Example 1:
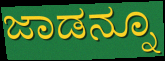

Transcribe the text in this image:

ಜಾಡನ್ನೂ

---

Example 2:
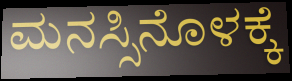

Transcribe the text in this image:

ಮನಸ್ಸಿನೊಳಕ್ಕೆ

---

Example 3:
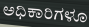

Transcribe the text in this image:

ಅಧಿಕಾರಿಗಳೂ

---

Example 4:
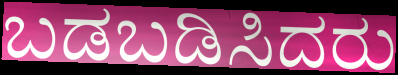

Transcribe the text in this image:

ಬಡಬಡಿಸಿದರು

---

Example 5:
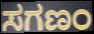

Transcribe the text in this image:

ಸಗಣಂ